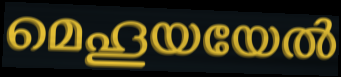
മെഹൂയയേൽ